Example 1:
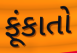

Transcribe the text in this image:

ફૂંકાતો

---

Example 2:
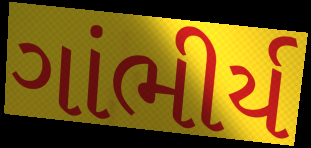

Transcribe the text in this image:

ગાંભીર્ય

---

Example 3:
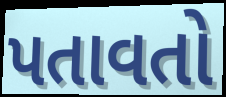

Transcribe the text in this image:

પતાવતો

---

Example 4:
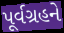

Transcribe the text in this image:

પૂર્વગ્રહને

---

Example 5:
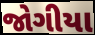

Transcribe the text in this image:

જોગીયા